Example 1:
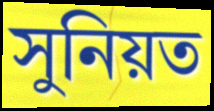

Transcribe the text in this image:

সুনিয়ত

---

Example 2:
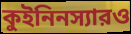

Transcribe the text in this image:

কুইনিনস্যারও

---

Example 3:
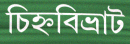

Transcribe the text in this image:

চিহ্নবিভ্রাট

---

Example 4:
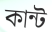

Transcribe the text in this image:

কান্ট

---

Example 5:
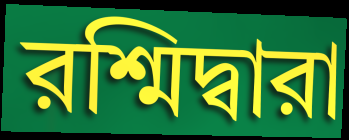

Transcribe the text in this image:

রশ্মিদ্বারা